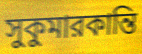
সুকুমারকান্তি